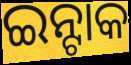
ଇନ୍ଟାକ